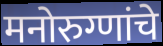
मनोरुग्णांचे